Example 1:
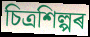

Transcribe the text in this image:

চিত্ৰশিল্পৰ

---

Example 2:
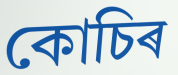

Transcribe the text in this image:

কোচিৰ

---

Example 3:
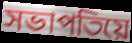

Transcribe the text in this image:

সভাপতিয়ে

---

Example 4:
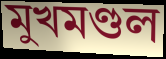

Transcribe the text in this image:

মুখমণ্ডল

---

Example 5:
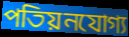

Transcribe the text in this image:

পতিয়নযোগ্য